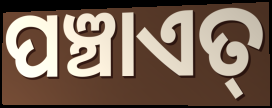
ପଞ୍ଚାଏତ୍